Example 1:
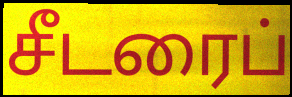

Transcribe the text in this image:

சீடரைப்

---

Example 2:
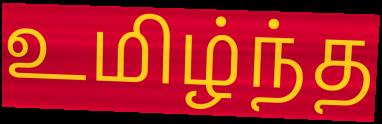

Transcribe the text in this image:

உமிழ்ந்த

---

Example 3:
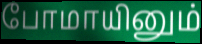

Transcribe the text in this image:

போமாயினும்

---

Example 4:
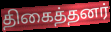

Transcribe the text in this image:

திகைத்தனர்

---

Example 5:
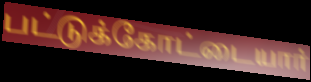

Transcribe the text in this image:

பட்டுக்கோட்டையார்